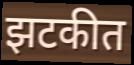
झटकीत